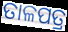
ତାଳପତ୍ର